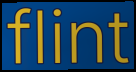
flint